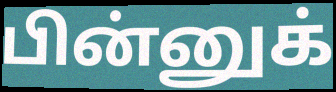
பின்னுக்